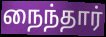
நைந்தார்